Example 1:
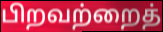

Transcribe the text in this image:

பிறவற்றைத்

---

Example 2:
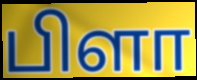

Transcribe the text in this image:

பிளா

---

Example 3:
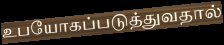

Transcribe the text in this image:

உபயோகப்படுத்துவதால்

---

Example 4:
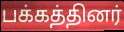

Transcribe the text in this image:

பக்கத்தினர்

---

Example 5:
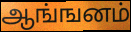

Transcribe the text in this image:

ஆங்ஙனம்